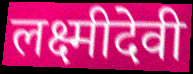
लक्ष्मीदेवी